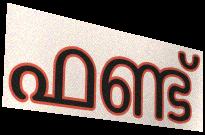
ഫണ്ട്